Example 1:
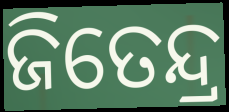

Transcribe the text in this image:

ଜିତେନ୍ଦ୍ର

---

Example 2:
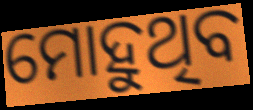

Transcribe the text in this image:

ମୋହୁଥିବ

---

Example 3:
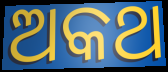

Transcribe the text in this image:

ଅକଥ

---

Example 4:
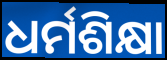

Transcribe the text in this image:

ଧର୍ମଶିକ୍ଷା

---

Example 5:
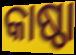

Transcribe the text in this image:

କାଷ୍ଠା